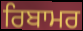
ਰਿਬਾਮਰ